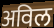
अविल